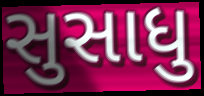
સુસાધુ